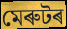
মেৰুটৰ